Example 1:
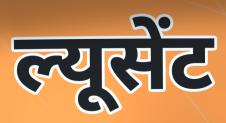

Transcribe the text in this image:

ल्यूसेंट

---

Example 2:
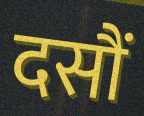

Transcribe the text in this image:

दसौं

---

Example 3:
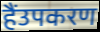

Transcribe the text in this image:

हैंउपकरण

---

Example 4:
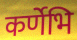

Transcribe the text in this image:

कर्णेभि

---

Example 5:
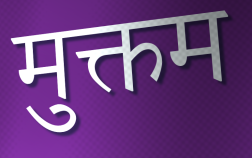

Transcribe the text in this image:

मुक्तम